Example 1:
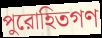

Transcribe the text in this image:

পুরোহিতগণ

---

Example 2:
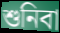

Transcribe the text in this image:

শুনিবা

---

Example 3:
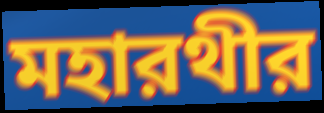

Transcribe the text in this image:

মহারথীর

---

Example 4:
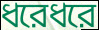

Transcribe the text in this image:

ধরেধরে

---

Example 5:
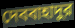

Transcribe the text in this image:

দেববাহাদুর